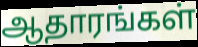
ஆதாரங்கள்